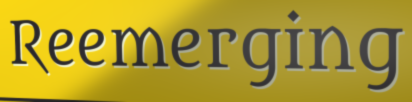
Reemerging